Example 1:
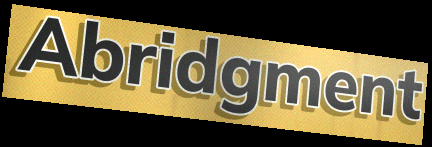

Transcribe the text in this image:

Abridgment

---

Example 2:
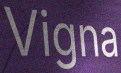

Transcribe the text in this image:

Vigna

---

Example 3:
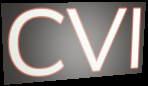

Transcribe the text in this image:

CVI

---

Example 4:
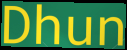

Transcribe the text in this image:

Dhun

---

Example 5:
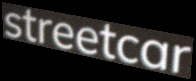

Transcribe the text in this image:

streetcar